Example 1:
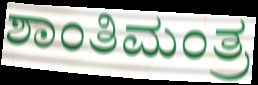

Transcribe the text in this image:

ಶಾಂತಿಮಂತ್ರ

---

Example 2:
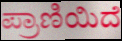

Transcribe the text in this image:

ಪ್ರಾಣಿಯಿದೆ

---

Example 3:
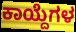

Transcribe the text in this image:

ಕಾಯ್ದೆಗಳ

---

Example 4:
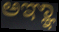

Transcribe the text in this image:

ಅಞ್ಞಾ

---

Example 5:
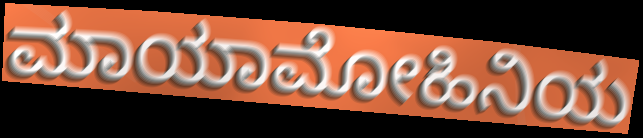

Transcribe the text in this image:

ಮಾಯಾಮೋಹಿನಿಯ